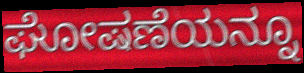
ಘೋಷಣೆಯನ್ನೂ